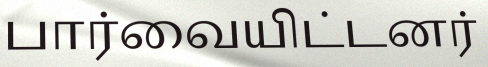
பார்வையிட்டனர்